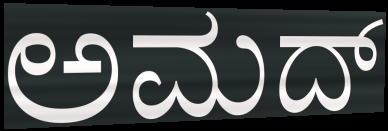
ಅಮದ್